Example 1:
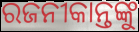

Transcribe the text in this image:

ରଜନୀକାନ୍ତଙ୍କୁ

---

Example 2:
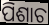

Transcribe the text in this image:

ପିଶାଚ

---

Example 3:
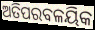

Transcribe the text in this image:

ଅତିପରବଳୟିକ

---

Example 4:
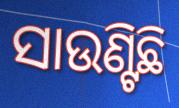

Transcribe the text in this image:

ସାଉଣ୍ଟିଛି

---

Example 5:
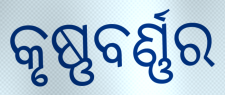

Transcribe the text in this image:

କୃଷ୍ଣବର୍ଣ୍ଣର